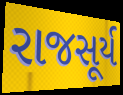
રાજસૂર્ય